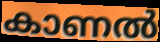
കാണൽ